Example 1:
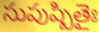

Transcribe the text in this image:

సుపుష్పితైః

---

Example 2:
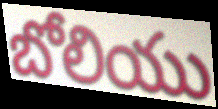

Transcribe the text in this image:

బోలియు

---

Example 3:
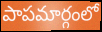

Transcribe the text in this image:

పాపమార్గంలో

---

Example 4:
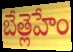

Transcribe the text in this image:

బేత్లెహేం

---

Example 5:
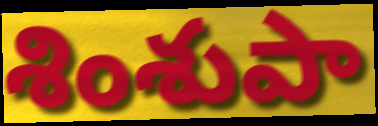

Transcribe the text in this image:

శింశుపా